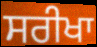
ਸਰੀਖਾ